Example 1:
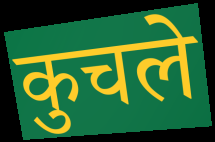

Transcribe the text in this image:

कुचले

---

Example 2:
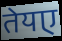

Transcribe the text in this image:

तेयए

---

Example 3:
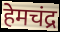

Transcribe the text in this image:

हेमचंद्र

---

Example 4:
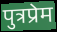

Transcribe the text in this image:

पुत्रप्रेम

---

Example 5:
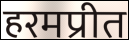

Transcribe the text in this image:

हरमप्रीत